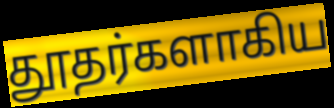
தூதர்களாகிய